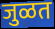
जुळत